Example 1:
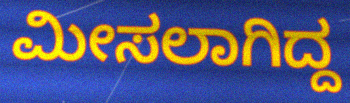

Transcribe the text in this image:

ಮೀಸಲಾಗಿದ್ದ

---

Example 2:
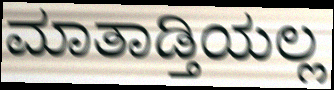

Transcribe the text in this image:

ಮಾತಾಡ್ತಿಯಲ್ಲ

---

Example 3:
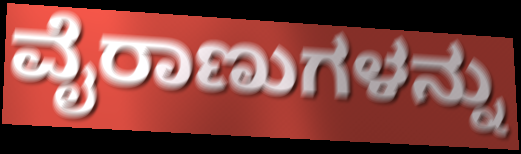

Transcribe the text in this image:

ವೈರಾಣುಗಳನ್ನು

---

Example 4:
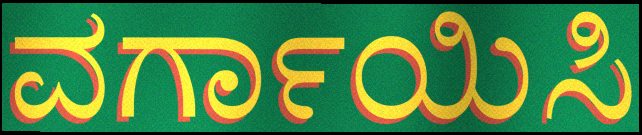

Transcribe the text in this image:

ವರ್ಗಾಯಿಸಿ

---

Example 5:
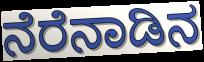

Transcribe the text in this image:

ನೆರೆನಾಡಿನ